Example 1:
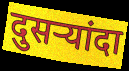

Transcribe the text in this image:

दुसऱ्यांदा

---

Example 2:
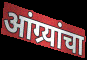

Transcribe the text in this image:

आंग्र्यांचा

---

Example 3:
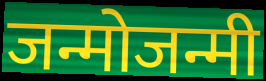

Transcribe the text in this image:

जन्मोजन्मी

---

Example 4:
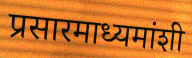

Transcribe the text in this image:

प्रसारमाध्यमांशी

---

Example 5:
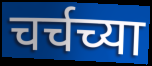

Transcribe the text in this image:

चर्चच्या